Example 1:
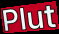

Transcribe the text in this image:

Plut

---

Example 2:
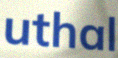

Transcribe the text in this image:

uthal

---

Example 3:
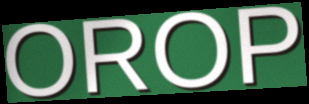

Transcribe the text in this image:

OROP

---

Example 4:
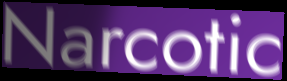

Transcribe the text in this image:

Narcotic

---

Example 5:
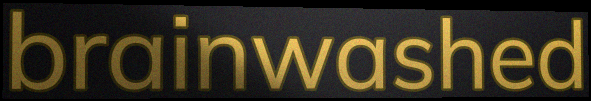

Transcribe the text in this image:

brainwashed